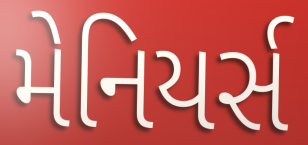
મેનિયર્સ